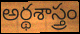
అర్థశాస్త్రం